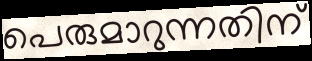
പെരുമാറുന്നതിന്